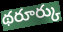
థరూర్కు